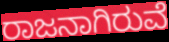
ರಾಜನಾಗಿರುವೆ